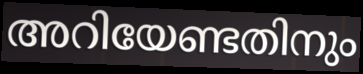
അറിയേണ്ടതിനും